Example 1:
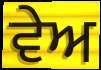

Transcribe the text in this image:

ਵੇਅ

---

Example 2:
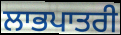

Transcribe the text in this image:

ਲਾਭਪਾਤਰੀ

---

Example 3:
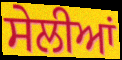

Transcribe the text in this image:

ਸੇਲੀਆਂ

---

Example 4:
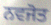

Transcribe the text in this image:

ਨਵਜੋਤ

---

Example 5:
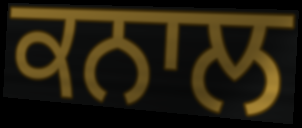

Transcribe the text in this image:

ਕਨਾਲ